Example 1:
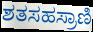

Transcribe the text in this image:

ಶತಸಹಸ್ರಾಣಿ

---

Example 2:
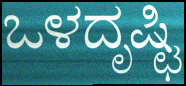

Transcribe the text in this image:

ಒಳದೃಷ್ಟಿ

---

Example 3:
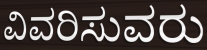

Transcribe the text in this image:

ವಿವರಿಸುವರು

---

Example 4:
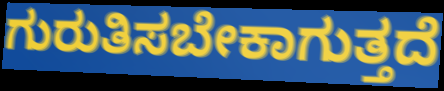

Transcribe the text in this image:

ಗುರುತಿಸಬೇಕಾಗುತ್ತದೆ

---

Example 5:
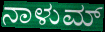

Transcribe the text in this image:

ನಾಳುಮ್